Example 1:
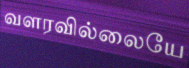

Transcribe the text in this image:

வளரவில்லையே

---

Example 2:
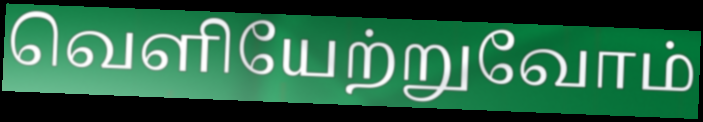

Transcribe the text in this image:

வெளியேற்றுவோம்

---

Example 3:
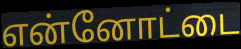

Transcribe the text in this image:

என்னோட்டை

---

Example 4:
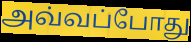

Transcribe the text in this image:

அவ்வப்போது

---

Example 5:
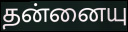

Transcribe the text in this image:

தன்னையு